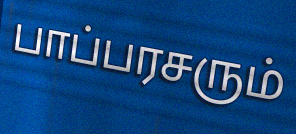
பாப்பரசரும்